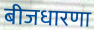
बीजधारणा